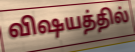
விஷயத்தில்